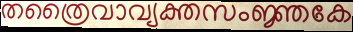
തത്രൈവാവ്യക്തസംജ്ഞകേ